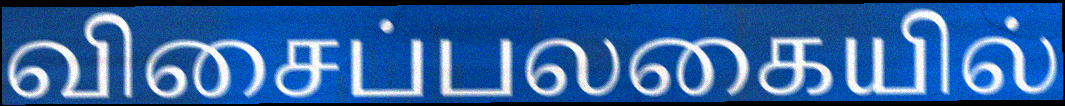
விசைப்பலகையில்